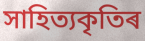
সাহিত্যকৃতিৰ